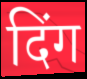
दिंग